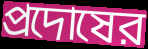
প্রদোষের